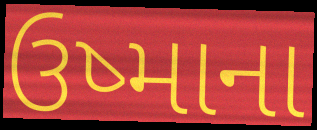
ઉષ્માના